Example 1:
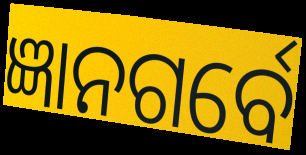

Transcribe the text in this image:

ଜ୍ଞାନଗର୍ବେ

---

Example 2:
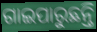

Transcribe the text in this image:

ଗାଇପାରୁଛନ୍ତି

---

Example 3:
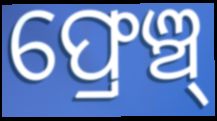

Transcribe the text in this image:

ଫ୍ରେଞ୍ଚ୍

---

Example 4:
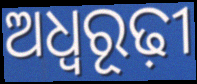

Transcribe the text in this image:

ଅଧ୍ଵରୂଢ଼ୀ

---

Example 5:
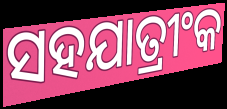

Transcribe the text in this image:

ସହଯାତ୍ରୀଂକ